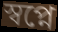
স্বপ্নে